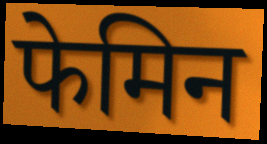
फेमिन